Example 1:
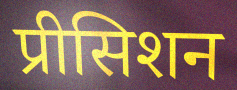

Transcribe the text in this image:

प्रीसिशन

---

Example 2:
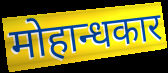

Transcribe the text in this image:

मोहान्धकार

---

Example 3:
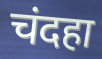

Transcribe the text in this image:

चंदहा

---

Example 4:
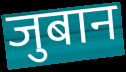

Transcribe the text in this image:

जुबान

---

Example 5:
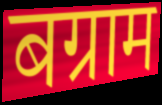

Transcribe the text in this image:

बग्राम